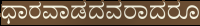
ಧಾರವಾಡದವರಾದರೂ